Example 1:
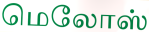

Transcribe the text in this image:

மெலோஸ்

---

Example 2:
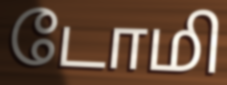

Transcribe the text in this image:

டோமி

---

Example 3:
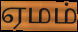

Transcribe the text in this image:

ஏமம்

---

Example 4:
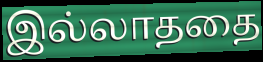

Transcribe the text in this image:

இல்லாததை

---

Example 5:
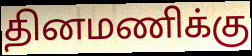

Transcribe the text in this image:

தினமணிக்கு